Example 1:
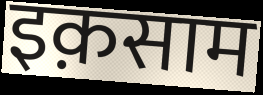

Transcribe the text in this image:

इक़साम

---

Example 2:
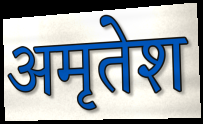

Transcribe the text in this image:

अमृतेश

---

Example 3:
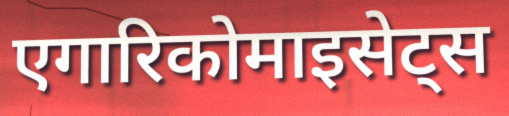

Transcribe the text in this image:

एगारिकोमाइसेट्स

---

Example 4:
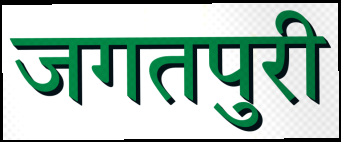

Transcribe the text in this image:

जगतपुरी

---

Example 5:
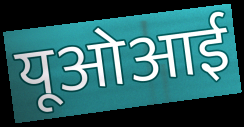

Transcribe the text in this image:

यूओआई